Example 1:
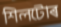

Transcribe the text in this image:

শিলটোৰ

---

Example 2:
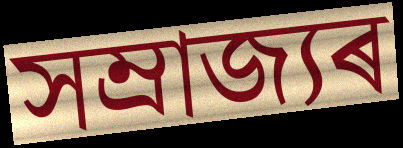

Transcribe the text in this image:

সম্ৰাজ্যৰ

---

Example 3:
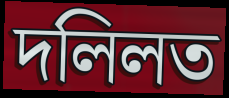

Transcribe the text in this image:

দলিলত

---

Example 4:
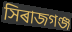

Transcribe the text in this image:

সিৰাজগঞ্জ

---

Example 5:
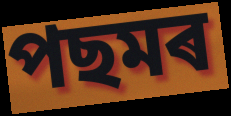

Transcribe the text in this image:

পছমৰ